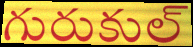
గురుకుల్